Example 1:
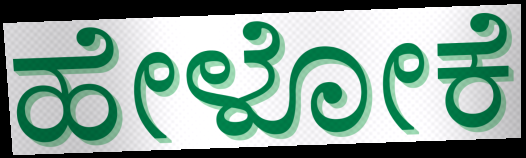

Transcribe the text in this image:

ಹೇಳೋಕೆ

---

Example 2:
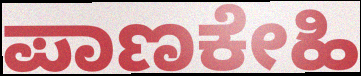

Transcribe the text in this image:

ಪಾಣಕೇಹಿ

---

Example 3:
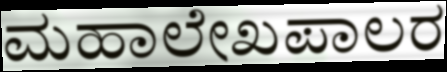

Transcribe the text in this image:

ಮಹಾಲೇಖಪಾಲರ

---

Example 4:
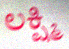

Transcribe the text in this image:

ಲಕ್ಷ್ಮಿ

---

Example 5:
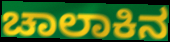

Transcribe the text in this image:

ಚಾಲಾಕಿನ